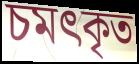
চমৎকৃত